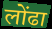
लोंढा